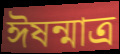
ঈষন্মাত্র